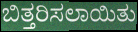
ಬಿತ್ತರಿಸಲಾಯಿತು